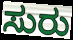
ಸುರು